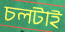
চলটাই